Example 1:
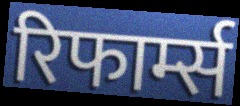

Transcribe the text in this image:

रिफार्म्स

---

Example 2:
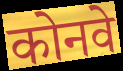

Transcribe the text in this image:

कोनवे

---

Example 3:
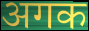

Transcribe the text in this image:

अगक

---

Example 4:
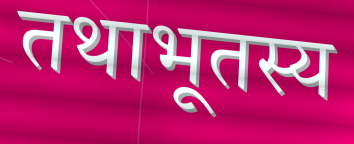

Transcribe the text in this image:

तथाभूतस्य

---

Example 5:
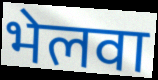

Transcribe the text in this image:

भेलवा